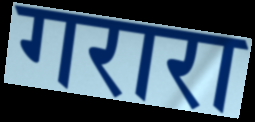
गरारा